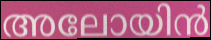
അലോയിൻ